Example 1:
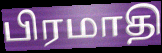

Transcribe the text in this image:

பிரமாதி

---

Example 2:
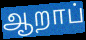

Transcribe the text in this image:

ஆறாப்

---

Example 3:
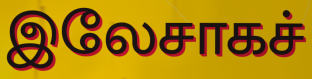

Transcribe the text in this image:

இலேசாகச்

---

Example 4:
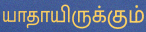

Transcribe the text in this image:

யாதாயிருக்கும்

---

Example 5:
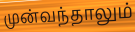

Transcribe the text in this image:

முன்வந்தாலும்